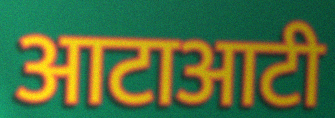
आटाआटी